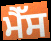
ਮੈੱਸ